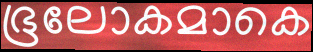
ഭൂലോകമാകെ